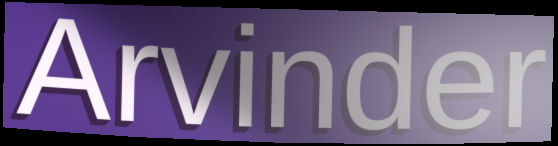
Arvinder